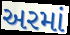
અરમાં